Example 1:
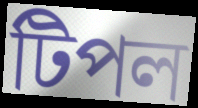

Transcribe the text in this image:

টিপল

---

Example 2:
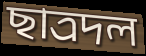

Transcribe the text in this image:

ছাত্রদল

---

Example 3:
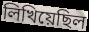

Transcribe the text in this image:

লিখিয়েছিল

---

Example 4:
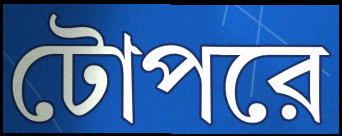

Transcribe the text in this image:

টোপরে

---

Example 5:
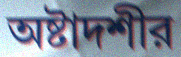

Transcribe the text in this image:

অষ্টাদশীর